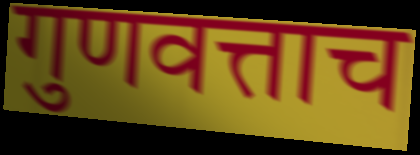
गुणवत्ताच